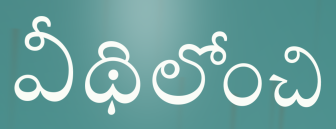
వీథిలోంచి